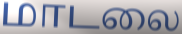
மாடலை